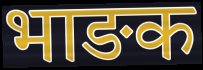
भाङक